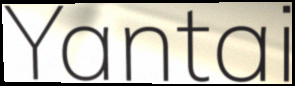
Yantai